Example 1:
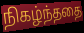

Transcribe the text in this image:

நிகழ்ந்ததை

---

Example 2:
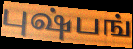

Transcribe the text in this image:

புஷ்பங்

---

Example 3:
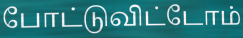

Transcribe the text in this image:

போட்டுவிட்டோம்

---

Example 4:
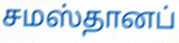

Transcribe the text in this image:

சமஸ்தானப்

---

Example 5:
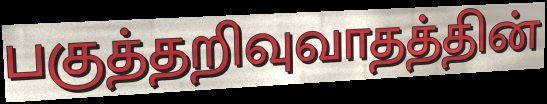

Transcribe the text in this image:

பகுத்தறிவுவாதத்தின்